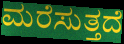
ಮರೆಸುತ್ತದೆ